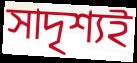
সাদৃশ্যই